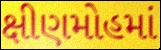
ક્ષીણમોહમાં